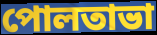
পোলতাভা